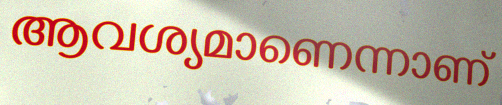
ആവശ്യമാണെന്നാണ്